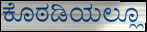
ಕೊಠಡಿಯಲ್ಲೂ